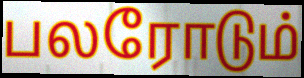
பலரோடும்